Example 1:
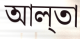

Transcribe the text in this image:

আল্‌তা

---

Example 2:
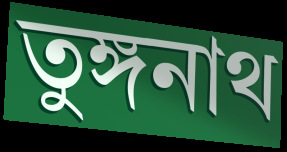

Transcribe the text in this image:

তুঙ্গনাথ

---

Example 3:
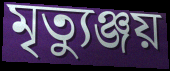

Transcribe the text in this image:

মৃত্যুঞ্জয়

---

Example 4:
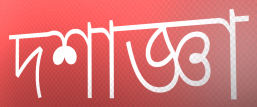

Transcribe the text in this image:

দশাজ্ঞা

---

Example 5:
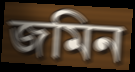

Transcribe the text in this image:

জমিন